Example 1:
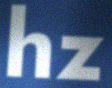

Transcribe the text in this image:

hz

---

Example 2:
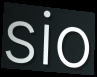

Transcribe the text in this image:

sio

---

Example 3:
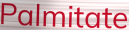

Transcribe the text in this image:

Palmitate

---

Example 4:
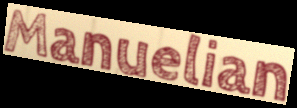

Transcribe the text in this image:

Manuelian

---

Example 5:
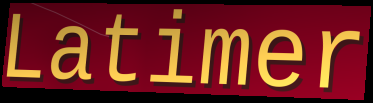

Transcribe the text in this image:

Latimer